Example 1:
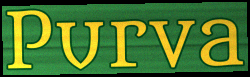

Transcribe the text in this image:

Purva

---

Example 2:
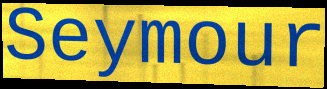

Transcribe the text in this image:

Seymour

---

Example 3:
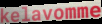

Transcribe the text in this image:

kelavomme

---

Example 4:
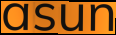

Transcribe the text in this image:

asun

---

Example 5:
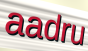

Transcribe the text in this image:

aadru